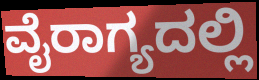
ವೈರಾಗ್ಯದಲ್ಲಿ